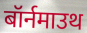
बॉर्नमाउथ